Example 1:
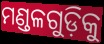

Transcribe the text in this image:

ମଣ୍ଡଳଗୁଡ଼ିକୁ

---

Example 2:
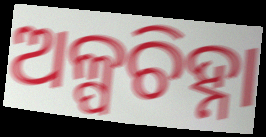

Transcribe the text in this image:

ଅଳ୍ପଚିହ୍ନା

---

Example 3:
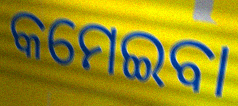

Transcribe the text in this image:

କମେଇବା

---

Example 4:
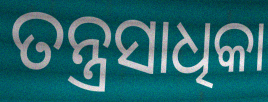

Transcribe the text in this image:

ତନ୍ତ୍ରସାଧିକା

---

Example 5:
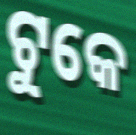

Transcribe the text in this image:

ଟୁକେ